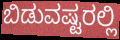
ಬಿಡುವಷ್ಟರಲ್ಲಿ